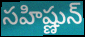
సహిష్ణున్